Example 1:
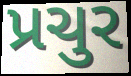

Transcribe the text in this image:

પ્રચુર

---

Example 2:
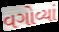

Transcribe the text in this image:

વગોવ્યાં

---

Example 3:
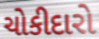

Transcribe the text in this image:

ચોકીદારો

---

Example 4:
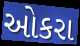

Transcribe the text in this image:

ઓકરા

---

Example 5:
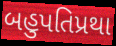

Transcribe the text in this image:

બહુપતિપ્રથા